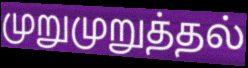
முறுமுறுத்தல்